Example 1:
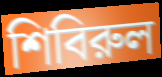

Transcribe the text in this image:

শিবিরুল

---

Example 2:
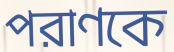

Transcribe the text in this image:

পরাণকে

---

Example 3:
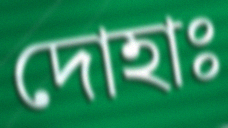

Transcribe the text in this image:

দোহাঃ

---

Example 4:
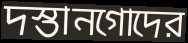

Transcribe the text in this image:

দস্তানগোদের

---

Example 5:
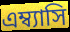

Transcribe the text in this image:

এম্ব্যাসি